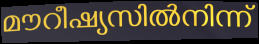
മൗറീഷ്യസിൽനിന്ന്